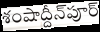
శంషాద్దీన్‌పూర్